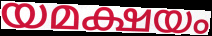
യമക്ഷയം